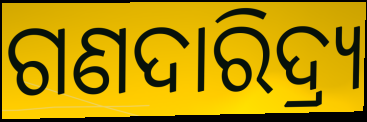
ଗଣଦାରିଦ୍ର୍ୟ